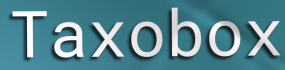
Taxobox